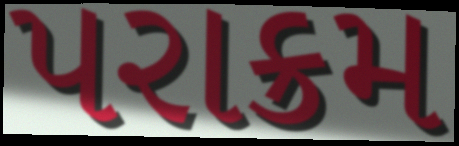
પરાક્રમ